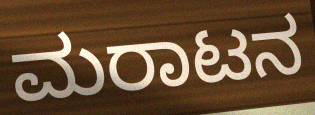
ಮರಾಟನ